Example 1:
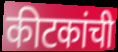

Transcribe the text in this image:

कीटकांची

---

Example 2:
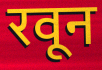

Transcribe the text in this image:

रवून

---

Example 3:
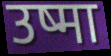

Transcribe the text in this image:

उष्मा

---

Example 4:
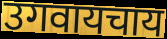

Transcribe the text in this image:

उगवायचाय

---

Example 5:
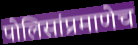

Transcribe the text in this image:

पोलिसांप्रमाणेच